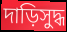
দাড়িসুদ্ধ